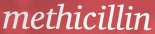
methicillin